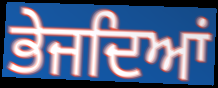
ਭੇਜਦਿਆਂ